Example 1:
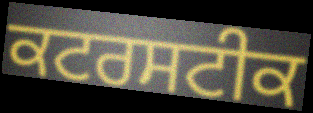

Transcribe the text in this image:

ਕਟਰਸਟੀਕ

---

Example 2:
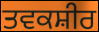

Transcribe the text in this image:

ਤਵਕਸ਼ੀਰ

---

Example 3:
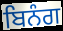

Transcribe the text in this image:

ਬਿਨੰਗ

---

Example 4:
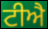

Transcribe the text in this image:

ਟੀਐ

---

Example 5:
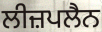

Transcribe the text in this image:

ਲੀਜ਼ਪਲੈਨ